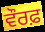
ਵੌਰਫ਼